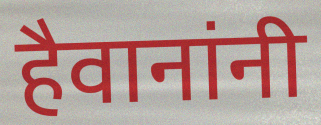
हैवानांनी